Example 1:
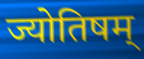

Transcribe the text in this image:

ज्योतिषम्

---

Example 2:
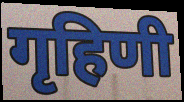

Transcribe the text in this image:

गृहिणी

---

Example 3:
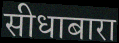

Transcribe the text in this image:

सीधाबारा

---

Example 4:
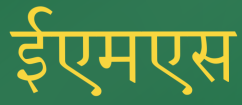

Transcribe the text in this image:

ईएमएस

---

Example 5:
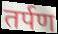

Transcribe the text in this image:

तर्पण